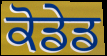
ਕੋਡੇਡ